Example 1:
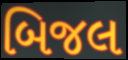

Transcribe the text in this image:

બિજલ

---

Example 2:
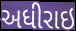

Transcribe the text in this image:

અધીરાઇ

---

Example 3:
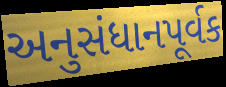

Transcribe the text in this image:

અનુસંધાનપૂર્વક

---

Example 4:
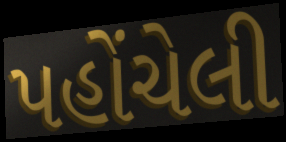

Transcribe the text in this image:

પહોંચેલી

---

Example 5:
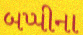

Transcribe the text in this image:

બપ્પીના